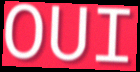
OUI